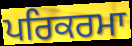
ਪਰਿਕਰਮਾ